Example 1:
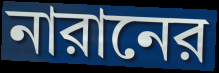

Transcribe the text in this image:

নারানের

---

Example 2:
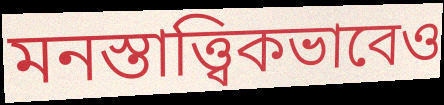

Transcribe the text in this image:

মনস্তাত্ত্বিকভাবেও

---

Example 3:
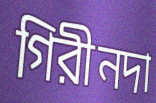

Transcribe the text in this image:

গিরীনদা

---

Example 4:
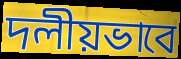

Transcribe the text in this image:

দলীয়ভাবে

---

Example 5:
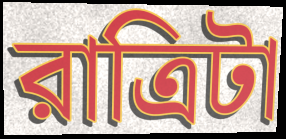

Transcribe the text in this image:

রাত্রিটা